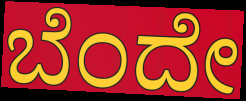
ಬೆಂದೇ